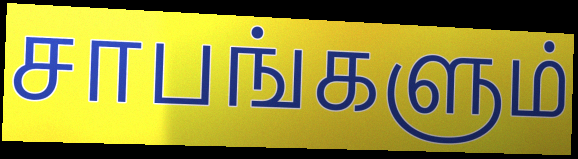
சாபங்களும்